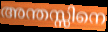
അന്തസ്സിനെ